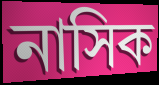
নাসিক